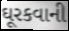
ઘૂરકવાની